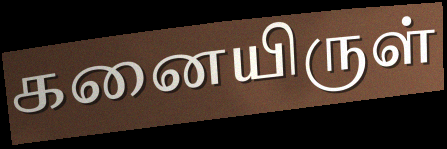
கனையிருள்